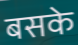
बसके